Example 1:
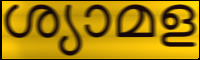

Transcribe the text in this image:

ശ്യാമള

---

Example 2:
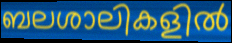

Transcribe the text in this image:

ബലശാലികളിൽ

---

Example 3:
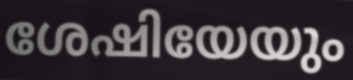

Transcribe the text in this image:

ശേഷിയേയും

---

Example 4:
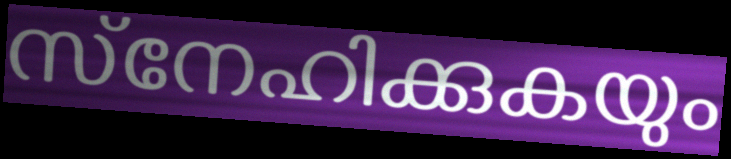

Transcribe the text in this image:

സ്‌നേഹിക്കുകയും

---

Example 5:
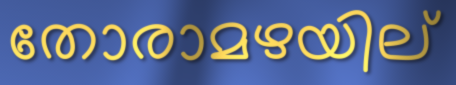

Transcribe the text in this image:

തോരാമഴയില്